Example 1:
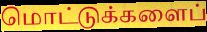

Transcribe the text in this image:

மொட்டுக்களைப்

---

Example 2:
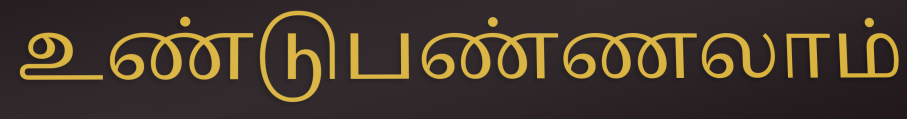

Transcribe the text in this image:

உண்டுபண்ணலாம்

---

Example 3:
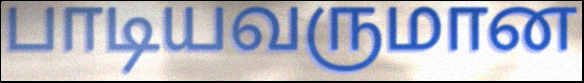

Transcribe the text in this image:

பாடியவருமான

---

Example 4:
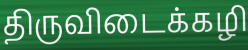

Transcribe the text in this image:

திருவிடைக்கழி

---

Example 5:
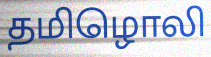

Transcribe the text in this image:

தமிழொலி